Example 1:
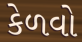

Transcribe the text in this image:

કેળવો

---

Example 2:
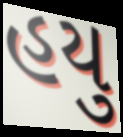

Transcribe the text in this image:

હયુ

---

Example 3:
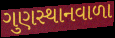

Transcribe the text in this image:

ગુણસ્થાનવાળા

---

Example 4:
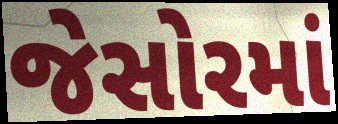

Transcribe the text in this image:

જેસોરમાં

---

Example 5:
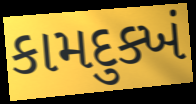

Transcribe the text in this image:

કામદુક્ખં